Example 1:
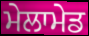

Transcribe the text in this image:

ਮੇਲਾਮੇਡ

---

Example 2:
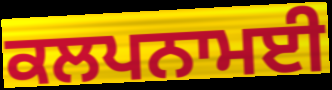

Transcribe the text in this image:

ਕਲਪਨਾਮਈ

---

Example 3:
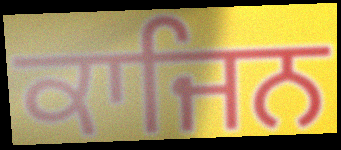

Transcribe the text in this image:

ਕਾਜਿਨ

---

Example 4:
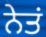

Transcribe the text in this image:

ਨੇਤਂ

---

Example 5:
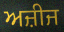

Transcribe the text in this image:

ਅਜ਼ੀਜ